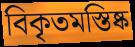
বিকৃতমস্তিষ্ক